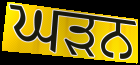
ਘੜਨ